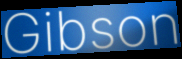
Gibson